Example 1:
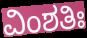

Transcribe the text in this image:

ವಿಂಶತಿಃ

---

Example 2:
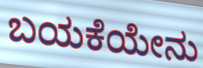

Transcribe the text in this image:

ಬಯಕೆಯೇನು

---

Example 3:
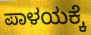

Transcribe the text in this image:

ಪಾಳಯಕ್ಕೆ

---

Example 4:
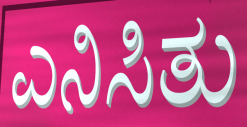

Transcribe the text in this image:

ಎನಿಸಿತು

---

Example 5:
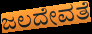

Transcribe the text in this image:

ಜಲದೇವತೆ